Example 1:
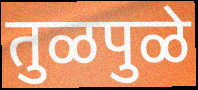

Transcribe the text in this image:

तुळपुळे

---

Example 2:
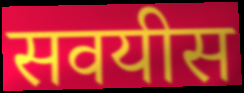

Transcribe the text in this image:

सवयीस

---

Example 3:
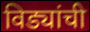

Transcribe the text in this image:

विड्यांची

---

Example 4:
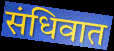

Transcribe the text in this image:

संधिवात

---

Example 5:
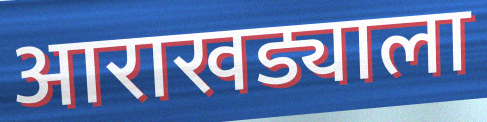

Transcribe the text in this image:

आराखड्याला